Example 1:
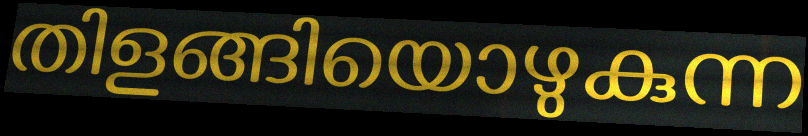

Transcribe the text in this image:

തിളങ്ങിയൊഴുകുന്ന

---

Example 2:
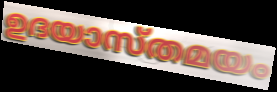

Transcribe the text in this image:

ഉദയാസ്തമയം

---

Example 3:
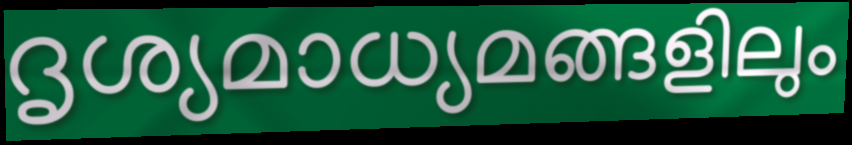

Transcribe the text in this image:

ദൃശ്യമാധ്യമങ്ങളിലും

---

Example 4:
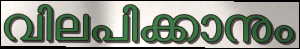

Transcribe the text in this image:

വിലപിക്കാനും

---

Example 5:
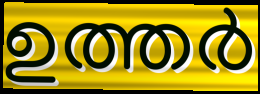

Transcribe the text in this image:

ഉത്തർ